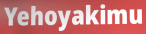
Yehoyakimu